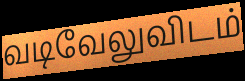
வடிவேலுவிடம்